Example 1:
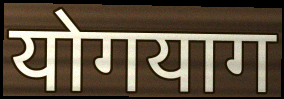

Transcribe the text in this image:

योगयाग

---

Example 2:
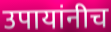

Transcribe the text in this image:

उपायांनीच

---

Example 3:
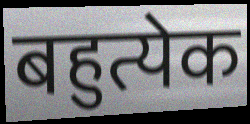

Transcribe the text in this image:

बहुत्येक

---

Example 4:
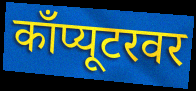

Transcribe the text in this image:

काँप्यूटरवर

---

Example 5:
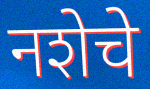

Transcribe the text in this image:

नशेचे